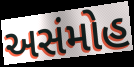
અસંમોહ